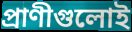
প্রাণীগুলোই